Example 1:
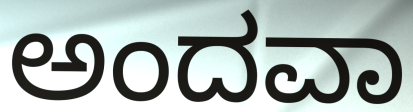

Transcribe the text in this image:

ಅಂದವಾ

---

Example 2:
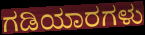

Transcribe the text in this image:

ಗಡಿಯಾರಗಳು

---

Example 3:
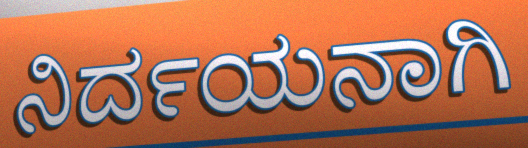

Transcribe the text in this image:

ನಿರ್ದಯನಾಗಿ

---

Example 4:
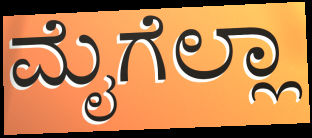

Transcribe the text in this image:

ಮೈಗೆಲ್ಲಾ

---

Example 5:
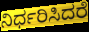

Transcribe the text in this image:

ನಿರ್ಧರಿಸಿದರೆ